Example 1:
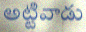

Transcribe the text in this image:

అట్టివాడు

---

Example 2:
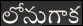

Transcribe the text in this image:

లోనుగాక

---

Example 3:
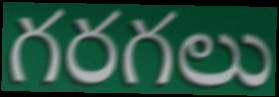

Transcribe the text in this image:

గరగలు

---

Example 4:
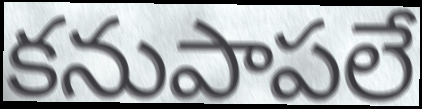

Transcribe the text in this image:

కనుపాపలే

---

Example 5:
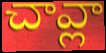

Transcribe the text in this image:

చావ్లా